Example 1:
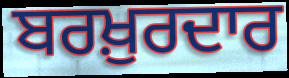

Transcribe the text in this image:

ਬਰਖ਼ੁਰਦਾਰ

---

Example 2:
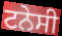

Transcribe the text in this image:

ਟਨੇਸੀ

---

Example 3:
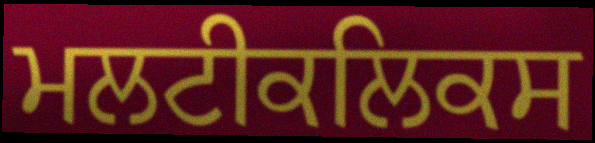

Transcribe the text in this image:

ਮਲਟੀਕਲਿਕਸ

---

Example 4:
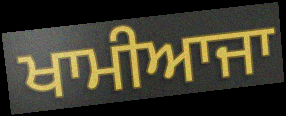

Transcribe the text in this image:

ਖਾਮੀਆਜਾ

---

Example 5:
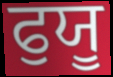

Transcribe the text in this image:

ਫੁਯੂ